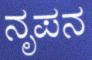
ನೃಪನ